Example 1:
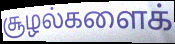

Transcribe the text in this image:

சூழல்களைக்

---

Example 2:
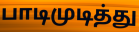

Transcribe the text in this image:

பாடிமுடித்து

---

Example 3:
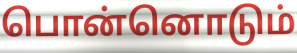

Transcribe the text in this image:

பொன்னொடும்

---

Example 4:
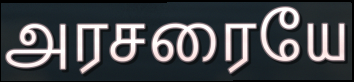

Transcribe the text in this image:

அரசரையே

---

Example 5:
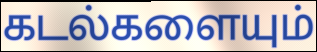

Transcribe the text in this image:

கடல்களையும்